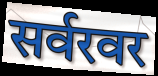
सर्वरवर